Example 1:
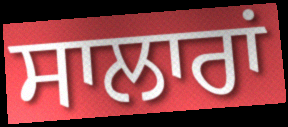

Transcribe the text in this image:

ਸਾਲਾਰਾਂ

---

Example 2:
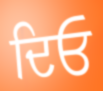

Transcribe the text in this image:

ਦਿਓ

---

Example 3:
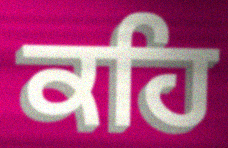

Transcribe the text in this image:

ਕਹਿ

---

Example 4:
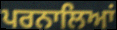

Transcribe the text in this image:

ਪਰਨਾਲਿਆਂ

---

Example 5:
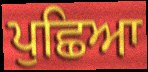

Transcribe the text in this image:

ਪੁਛਿਆ